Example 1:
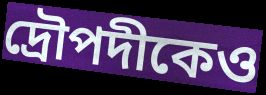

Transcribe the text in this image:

দ্রৌপদীকেও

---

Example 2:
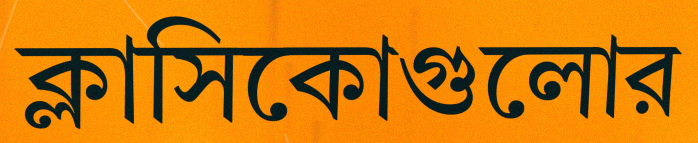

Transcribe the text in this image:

ক্লাসিকোগুলোর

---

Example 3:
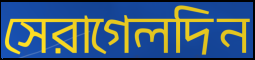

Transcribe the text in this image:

সেরাগেলদিন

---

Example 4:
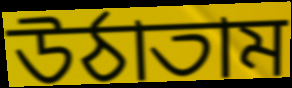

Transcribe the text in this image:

উঠাতাম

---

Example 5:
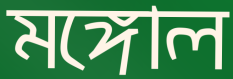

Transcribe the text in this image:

মঙ্গোল